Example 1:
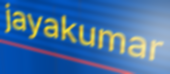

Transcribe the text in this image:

jayakumar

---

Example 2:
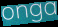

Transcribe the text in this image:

onga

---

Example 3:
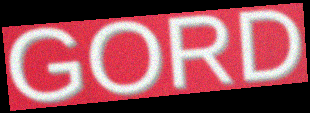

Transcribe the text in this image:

GORD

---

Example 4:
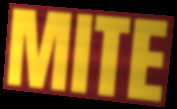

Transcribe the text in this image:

MITE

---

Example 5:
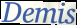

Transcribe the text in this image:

Demis